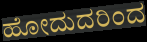
ಹೋದುದರಿಂದ